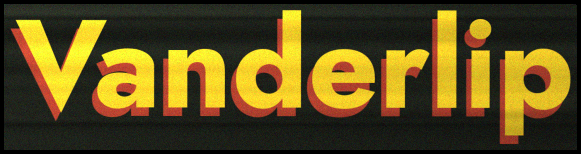
Vanderlip